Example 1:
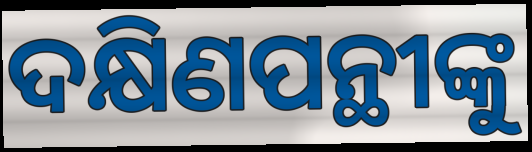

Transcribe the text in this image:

ଦକ୍ଷିଣପନ୍ଥୀଙ୍କୁ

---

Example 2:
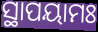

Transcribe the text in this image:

ସ୍ଥାପୟାମଃ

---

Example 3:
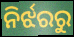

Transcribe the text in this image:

ନିର୍ଝରରୁ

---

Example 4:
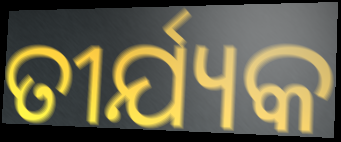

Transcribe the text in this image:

ତୀର୍ଯ୍ୟକ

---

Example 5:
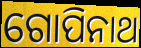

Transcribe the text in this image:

ଗୋପିନାଥ